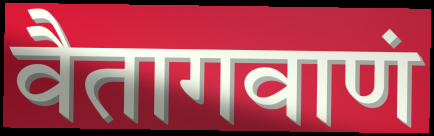
वैतागवाणं